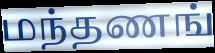
மந்தணங்